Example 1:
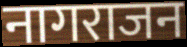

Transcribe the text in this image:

नागराजन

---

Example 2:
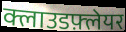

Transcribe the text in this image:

क्लाउडफ़्लेयर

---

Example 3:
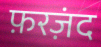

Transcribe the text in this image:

फ़रज़ंद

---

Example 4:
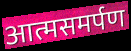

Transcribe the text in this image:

आत्मसमर्पण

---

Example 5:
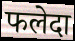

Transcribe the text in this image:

फलेदा